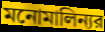
মনোমালিন্যর